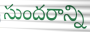
సుందరాన్ని